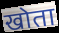
खोता